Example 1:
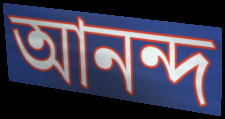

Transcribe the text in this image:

আনন্দ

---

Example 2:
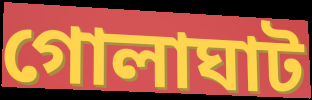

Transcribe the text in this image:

গোলাঘাট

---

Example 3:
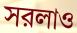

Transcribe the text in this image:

সরলাও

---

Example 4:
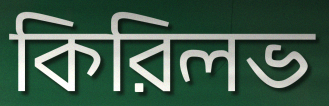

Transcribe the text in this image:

কিরিলভ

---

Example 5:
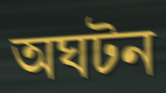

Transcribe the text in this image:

অঘটন